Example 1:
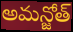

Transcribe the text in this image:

అమన్జోత్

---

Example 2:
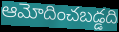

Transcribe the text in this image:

ఆమోదించబడ్డది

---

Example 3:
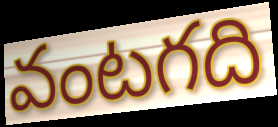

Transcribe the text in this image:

వంటగది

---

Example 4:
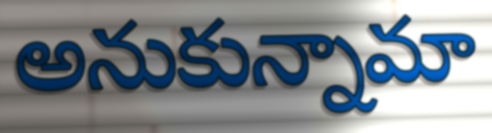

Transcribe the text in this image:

అనుకున్నామా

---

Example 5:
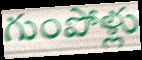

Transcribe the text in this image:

గుంపోళ్లు